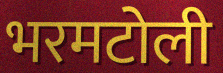
भरमटोली